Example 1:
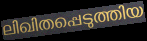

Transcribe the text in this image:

ലിഖിതപ്പെടുത്തിയ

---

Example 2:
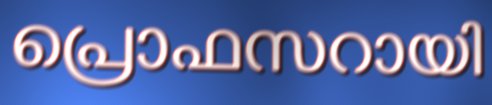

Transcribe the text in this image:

പ്രൊഫസറായി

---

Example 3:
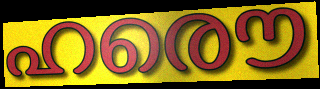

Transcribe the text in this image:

ഹരൌ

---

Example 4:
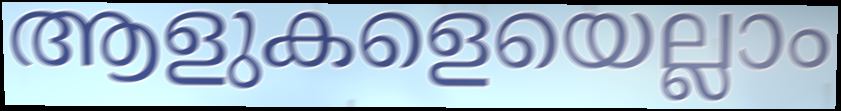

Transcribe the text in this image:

ആളുകളെയെല്ലാം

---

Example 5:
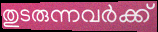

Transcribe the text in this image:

തുടരുന്നവർക്ക്